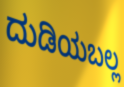
ದುಡಿಯಬಲ್ಲ